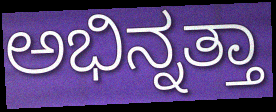
ಅಭಿನ್ನತ್ತಾ